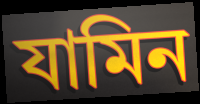
যামিন